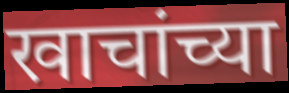
खाचांच्या